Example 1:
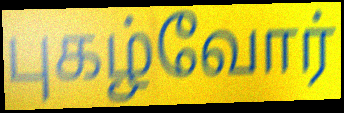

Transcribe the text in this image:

புகழ்வோர்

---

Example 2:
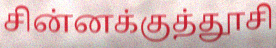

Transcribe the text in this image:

சின்னக்குத்தூசி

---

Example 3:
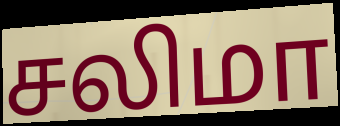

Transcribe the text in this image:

சலிமா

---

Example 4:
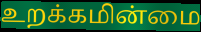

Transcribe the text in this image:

உறக்கமின்மை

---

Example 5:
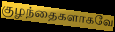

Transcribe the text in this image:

குழந்தைகளாகவே